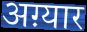
अग़्यार